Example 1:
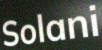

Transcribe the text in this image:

Solani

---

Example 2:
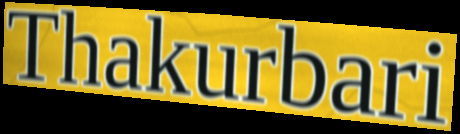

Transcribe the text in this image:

Thakurbari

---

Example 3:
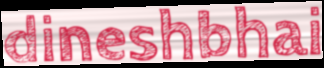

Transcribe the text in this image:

dineshbhai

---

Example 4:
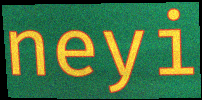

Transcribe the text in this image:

neyi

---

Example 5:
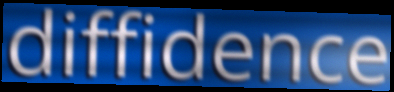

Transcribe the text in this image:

diffidence